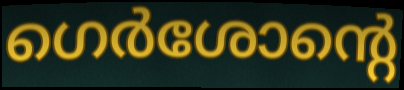
ഗെർശോന്റെ